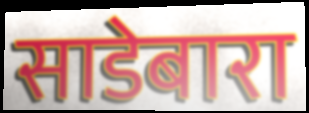
साडेबारा